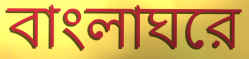
বাংলাঘরে